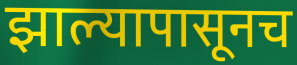
झाल्यापासूनच